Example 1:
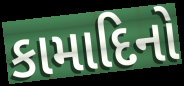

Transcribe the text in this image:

કામાદિનો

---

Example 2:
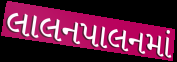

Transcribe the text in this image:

લાલનપાલનમાં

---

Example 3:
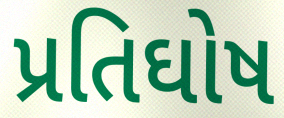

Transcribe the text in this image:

પ્રતિઘોષ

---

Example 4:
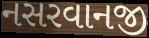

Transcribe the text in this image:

નસરવાનજી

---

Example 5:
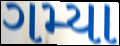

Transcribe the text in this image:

ગમ્યા